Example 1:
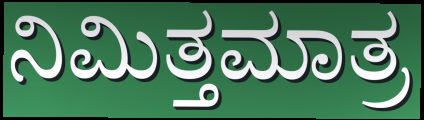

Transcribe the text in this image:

ನಿಮಿತ್ತಮಾತ್ರ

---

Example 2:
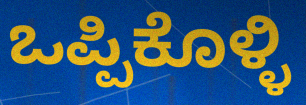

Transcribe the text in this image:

ಒಪ್ಪಿಕೊಳ್ಳಿ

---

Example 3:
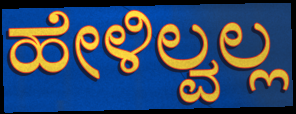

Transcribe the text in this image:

ಹೇಳಿಲ್ವಲ್ಲ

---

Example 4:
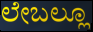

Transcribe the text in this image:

ಲೇಬಲ್ಲೂ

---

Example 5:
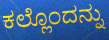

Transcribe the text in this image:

ಕಲ್ಲೊಂದನ್ನು